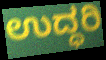
ಉದ್ಧರಿ